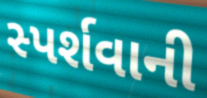
સ્પર્શવાની